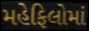
મહેફિલોમાં